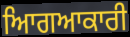
ਆਿਗਆਕਾਰੀ